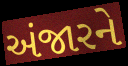
અંજારને